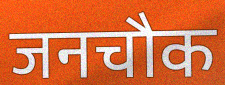
जनचौक